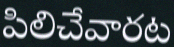
పిలిచేవారట